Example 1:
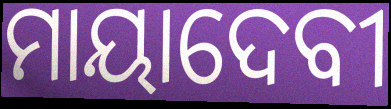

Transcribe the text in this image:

ମାୟାଦେବୀ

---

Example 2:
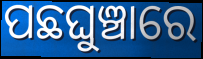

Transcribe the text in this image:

ପଛଘୁଞ୍ଚାରେ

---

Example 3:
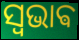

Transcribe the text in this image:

ସ୍ଵଭାଵ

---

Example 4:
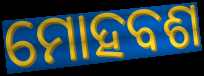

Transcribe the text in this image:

ମୋହବଶ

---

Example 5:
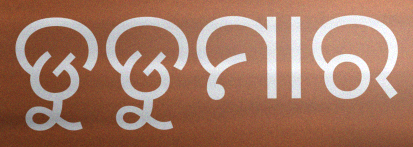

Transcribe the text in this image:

ଡୁଡୁମାର